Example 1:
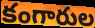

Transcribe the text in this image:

కంగారుల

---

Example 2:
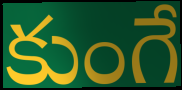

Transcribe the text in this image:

కుంగే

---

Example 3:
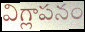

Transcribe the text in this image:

విగ్లాపనం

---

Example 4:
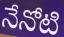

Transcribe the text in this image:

నేనోటి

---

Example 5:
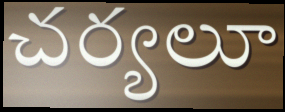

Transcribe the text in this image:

చర్యలూ